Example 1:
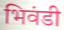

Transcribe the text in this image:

भिवंडी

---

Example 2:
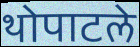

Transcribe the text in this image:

थोपाटले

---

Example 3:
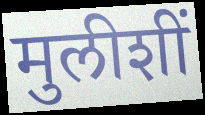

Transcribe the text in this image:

मुलीशीं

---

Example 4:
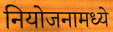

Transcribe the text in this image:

नियोजनामध्ये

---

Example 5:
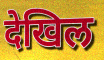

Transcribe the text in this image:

देखिल